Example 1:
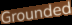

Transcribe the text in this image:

Grounded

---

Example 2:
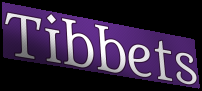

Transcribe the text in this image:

Tibbets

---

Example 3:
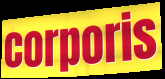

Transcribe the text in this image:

corporis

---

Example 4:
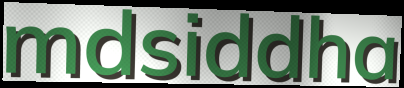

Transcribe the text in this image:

mdsiddha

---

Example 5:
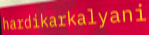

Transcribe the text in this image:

hardikarkalyani